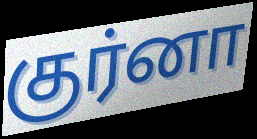
குர்னா